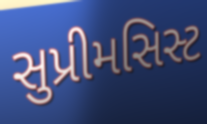
સુપ્રીમસિસ્ટ